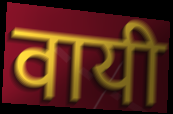
वायी